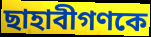
ছাহাবীগণকে